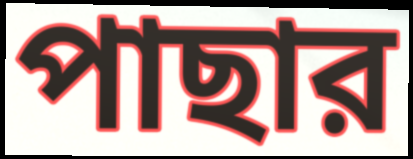
পাছার